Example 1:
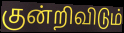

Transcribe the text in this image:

குன்றிவிடும்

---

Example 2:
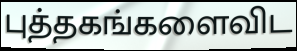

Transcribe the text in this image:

புத்தகங்களைவிட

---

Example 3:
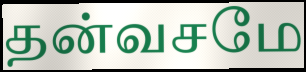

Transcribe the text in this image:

தன்வசமே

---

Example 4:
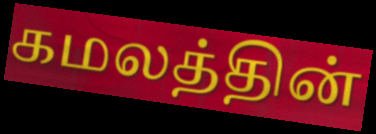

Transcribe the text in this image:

கமலத்தின்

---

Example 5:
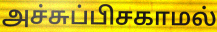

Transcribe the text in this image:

அச்சுப்பிசகாமல்